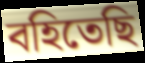
বহিতেছি